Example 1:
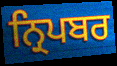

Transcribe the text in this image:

ਨ੍ਰਿਪਬਰ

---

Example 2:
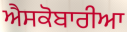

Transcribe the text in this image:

ਐਸਕੋਬਾਰੀਆ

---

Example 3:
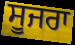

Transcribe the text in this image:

ਸੂਜਰਾ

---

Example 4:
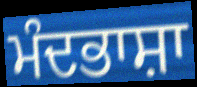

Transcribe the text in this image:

ਮੰਦਭਾਸ਼ਾ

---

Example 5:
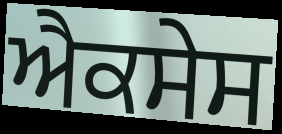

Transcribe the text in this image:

ਐਕਸੇਸ